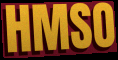
HMSO